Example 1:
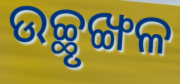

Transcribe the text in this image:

ଉଚ୍ଛୃଙ୍ଖଳ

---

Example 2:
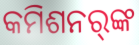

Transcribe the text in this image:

କମିଶନର୍‌ଙ୍କ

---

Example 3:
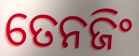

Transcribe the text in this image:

ତେନଜିଂ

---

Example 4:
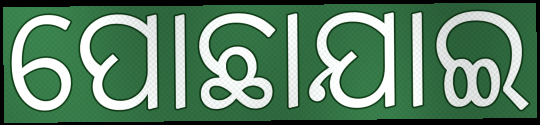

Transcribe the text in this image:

ପୋଛାଯାଇ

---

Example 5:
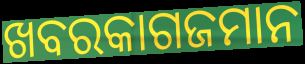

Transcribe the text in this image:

ଖବରକାଗଜମାନ